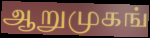
ஆறுமுகங்